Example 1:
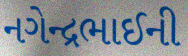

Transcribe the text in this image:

નગેન્દ્રભાઈની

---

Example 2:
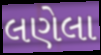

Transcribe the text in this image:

લણેલા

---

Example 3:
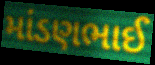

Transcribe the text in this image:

માંડણભાઈ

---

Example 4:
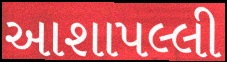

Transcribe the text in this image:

આશાપલ્લી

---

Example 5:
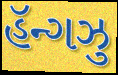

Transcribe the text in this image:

હૅન્ગઝુ